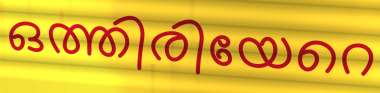
ഒത്തിരിയേറെ